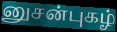
னுசன்புகழ்